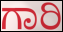
ಗಾರಿ